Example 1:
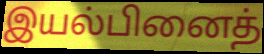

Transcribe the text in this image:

இயல்பினைத்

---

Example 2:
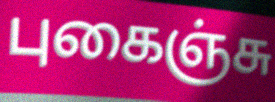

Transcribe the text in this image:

புகைஞ்சு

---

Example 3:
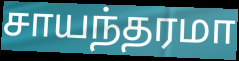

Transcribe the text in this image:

சாயந்தரமா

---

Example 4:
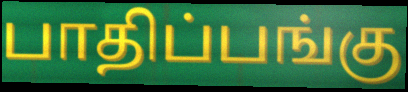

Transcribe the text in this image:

பாதிப்பங்கு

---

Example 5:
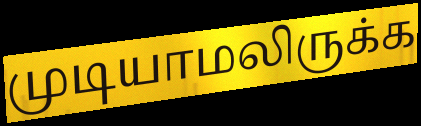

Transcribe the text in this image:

முடியாமலிருக்க